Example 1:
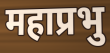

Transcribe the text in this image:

महाप्रभु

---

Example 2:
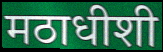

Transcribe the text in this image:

मठाधीशी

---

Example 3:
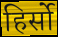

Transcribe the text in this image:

हिर्सो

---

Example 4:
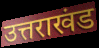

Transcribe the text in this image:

उत्तराखंड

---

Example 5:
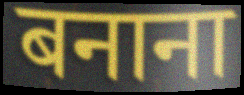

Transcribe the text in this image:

बनाना